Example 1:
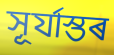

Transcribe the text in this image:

সূৰ্যাস্তৰ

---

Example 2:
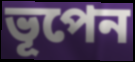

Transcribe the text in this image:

ভূপেন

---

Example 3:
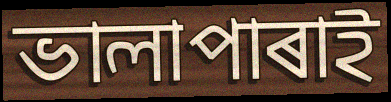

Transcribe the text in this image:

ভালাপাৰাই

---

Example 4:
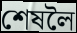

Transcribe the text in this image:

শেষলৈ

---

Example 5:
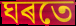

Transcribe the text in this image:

ঘৰতে